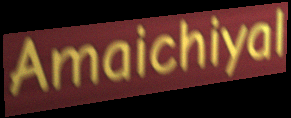
Amaichiyal